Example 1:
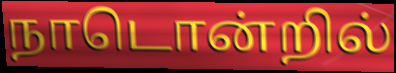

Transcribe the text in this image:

நாடொன்றில்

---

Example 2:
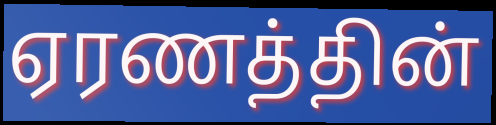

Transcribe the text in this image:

ஏரணத்தின்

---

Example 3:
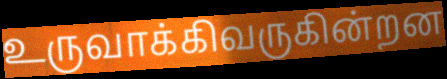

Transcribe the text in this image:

உருவாக்கிவருகின்றன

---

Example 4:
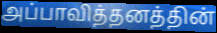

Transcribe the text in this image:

அப்பாவித்தனத்தின்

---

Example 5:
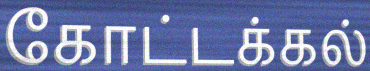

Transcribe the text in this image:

கோட்டக்கல்